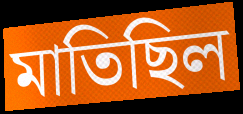
মাতিছিল